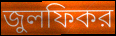
জুলফিকর